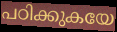
പഠിക്കുകയേ